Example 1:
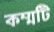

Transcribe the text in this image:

কম্মটি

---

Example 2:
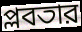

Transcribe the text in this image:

প্লবতার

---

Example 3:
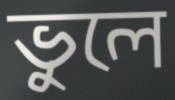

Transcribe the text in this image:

ভুলে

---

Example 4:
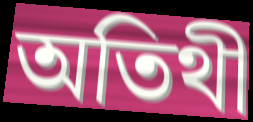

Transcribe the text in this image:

অতিথী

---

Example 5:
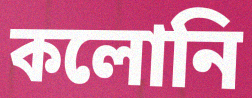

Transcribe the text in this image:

কলোনি